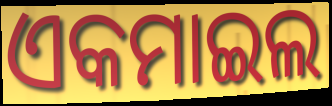
ଏକମାଇଲ